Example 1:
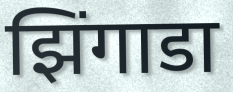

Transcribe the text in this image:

झिंगाडा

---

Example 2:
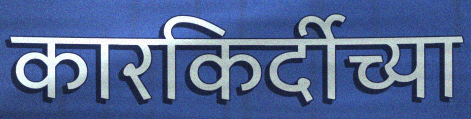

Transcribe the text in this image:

कारकिर्दीच्या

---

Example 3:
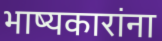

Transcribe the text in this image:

भाष्यकारांना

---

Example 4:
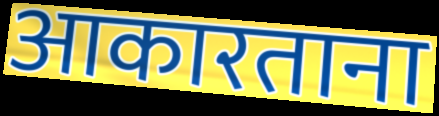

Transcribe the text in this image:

आकारताना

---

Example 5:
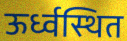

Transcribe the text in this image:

ऊर्ध्वस्थित